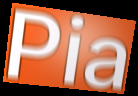
Pia